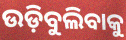
ଉଡ଼ିବୁଲିବାକୁ